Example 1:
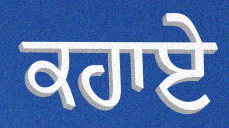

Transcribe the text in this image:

ਕਹਾਏ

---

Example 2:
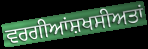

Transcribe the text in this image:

ਵਰਗੀਆਂਸ਼ਖਸੀਅਤਾਂ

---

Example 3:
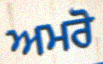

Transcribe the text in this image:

ਅਮਰੋ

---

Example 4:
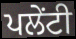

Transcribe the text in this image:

ਪਲੇਂਟੀ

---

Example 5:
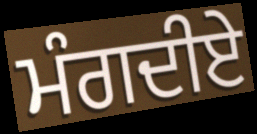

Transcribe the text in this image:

ਮੰਗਦੀਏ